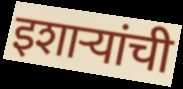
इशाऱ्यांची